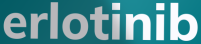
erlotinib